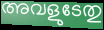
അവളുടേതു